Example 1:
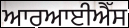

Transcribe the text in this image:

ਆਰਆਈਐੱਸ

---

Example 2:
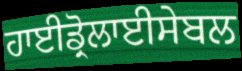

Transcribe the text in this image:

ਹਾਈਡ੍ਰੋਲਾਈਸੇਬਲ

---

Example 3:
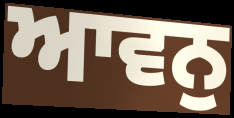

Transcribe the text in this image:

ਆਵਨੁ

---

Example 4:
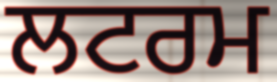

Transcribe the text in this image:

ਲਟਰਮ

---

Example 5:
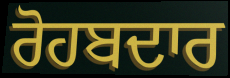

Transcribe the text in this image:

ਰੋਹਬਦਾਰ